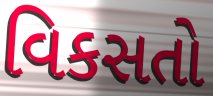
વિકસતો